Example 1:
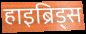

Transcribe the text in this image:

हाइब्रिड्स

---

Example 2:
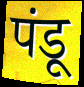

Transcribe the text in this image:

पंडू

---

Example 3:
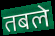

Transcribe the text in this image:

तबले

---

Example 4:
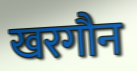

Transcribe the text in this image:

खरगौन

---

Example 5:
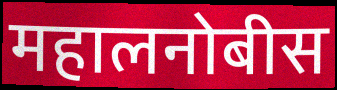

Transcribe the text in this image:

महालनोबीस